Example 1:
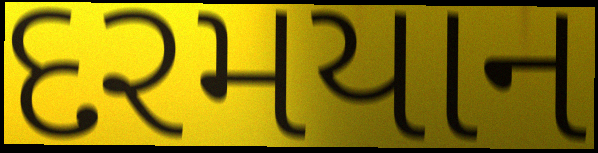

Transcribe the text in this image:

દરમયાન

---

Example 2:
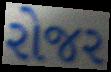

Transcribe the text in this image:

રોજર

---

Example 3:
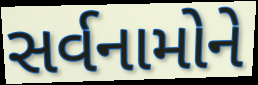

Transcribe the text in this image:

સર્વનામોને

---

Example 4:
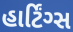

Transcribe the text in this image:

હાર્ટિંગ્સ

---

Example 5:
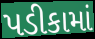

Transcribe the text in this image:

પડીકામાં